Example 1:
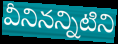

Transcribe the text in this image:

వీనినన్నిటిని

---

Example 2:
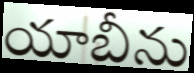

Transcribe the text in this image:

యాబీను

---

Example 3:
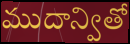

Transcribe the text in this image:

ముదాన్వితో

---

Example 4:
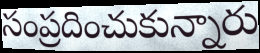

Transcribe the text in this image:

సంప్రదించుకున్నారు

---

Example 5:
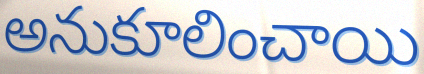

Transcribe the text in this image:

అనుకూలించాయి